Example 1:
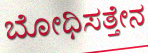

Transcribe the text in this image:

ಬೋಧಿಸತ್ತೇನ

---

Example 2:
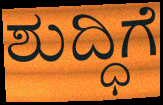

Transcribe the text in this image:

ಶುದ್ಧಿಗೆ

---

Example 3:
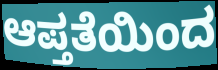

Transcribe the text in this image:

ಆಪ್ತತೆಯಿಂದ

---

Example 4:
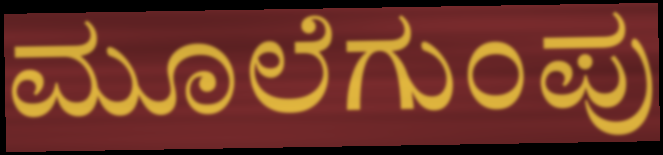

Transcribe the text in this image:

ಮೂಲೆಗುಂಪು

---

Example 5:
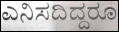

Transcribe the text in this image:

ಎನಿಸದಿದ್ದರೂ